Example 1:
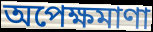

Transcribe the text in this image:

অপেক্ষমাণা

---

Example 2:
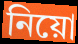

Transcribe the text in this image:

নিয়ো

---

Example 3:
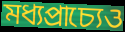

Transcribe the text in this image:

মধ্যপ্রাচ্যেও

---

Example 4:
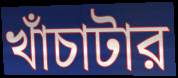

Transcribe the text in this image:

খাঁচাটার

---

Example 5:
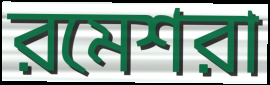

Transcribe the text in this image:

রমেশরা